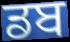
ਡਬ